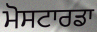
ਮੋਸਟਾਰਡਾ